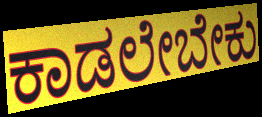
ಕಾಡಲೇಬೇಕು